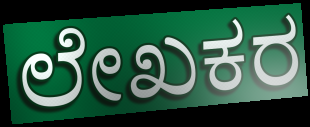
ಲೇಖಕರ